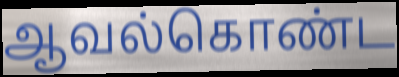
ஆவல்கொண்ட